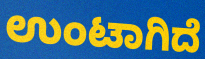
ಉಂಟಾಗಿದೆ